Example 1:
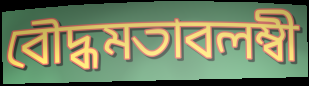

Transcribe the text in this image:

বৌদ্ধমতাবলম্বী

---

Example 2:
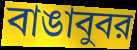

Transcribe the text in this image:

বাঙাবুবর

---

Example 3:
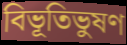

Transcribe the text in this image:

বিভূতিভুষণ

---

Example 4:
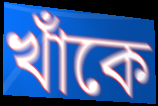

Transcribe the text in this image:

খাঁকে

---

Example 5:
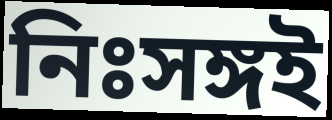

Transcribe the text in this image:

নিঃসঙ্গই